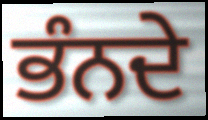
ਭੰਨਦੇ